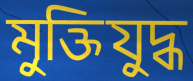
মুক্তিযুদ্ধ